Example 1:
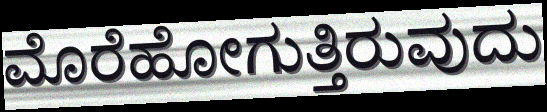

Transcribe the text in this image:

ಮೊರೆಹೋಗುತ್ತಿರುವುದು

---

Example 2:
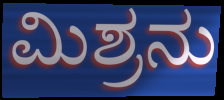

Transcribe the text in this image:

ಮಿಶ್ರನು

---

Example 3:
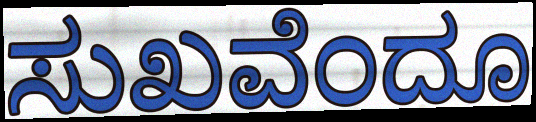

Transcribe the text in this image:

ಸುಖವೆಂದೂ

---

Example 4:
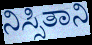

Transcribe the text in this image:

ನಿಸ್ಸಿತಾನಿ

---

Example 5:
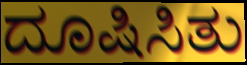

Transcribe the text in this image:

ದೂಷಿಸಿತು